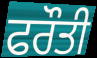
ਫਰੌਤੀ